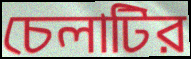
চেলাটির